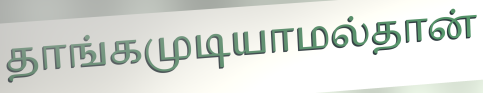
தாங்கமுடியாமல்தான்